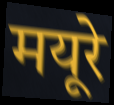
मयूरे